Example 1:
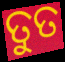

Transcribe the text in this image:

ତୁତ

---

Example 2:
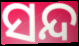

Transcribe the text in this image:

ସନ୍ଦ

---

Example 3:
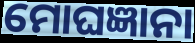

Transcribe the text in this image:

ମୋଘଜ୍ଞାନା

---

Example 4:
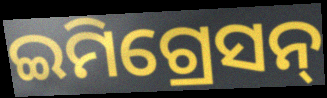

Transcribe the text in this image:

ଇମିଗ୍ରେସନ୍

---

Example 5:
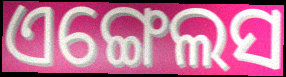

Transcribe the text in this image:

ଏଙ୍ଗେଲସ